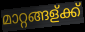
മാറ്റങ്ങള്ക്ക്